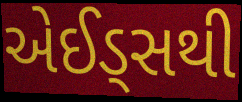
એઈડ્સથી